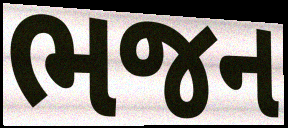
ભજન